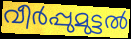
വീർപ്പുമുട്ടൽ